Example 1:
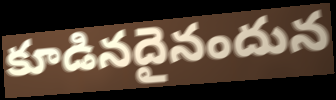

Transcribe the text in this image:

కూడినదైనందున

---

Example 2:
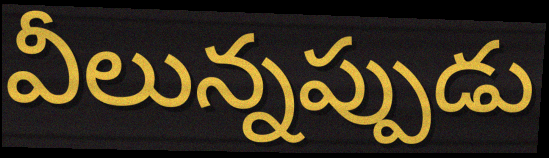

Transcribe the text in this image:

వీలున్నప్పుడు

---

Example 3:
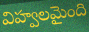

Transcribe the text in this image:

విహ్వలమైంది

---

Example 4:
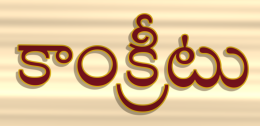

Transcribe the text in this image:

కాంక్రీటు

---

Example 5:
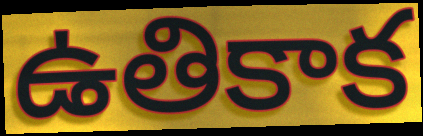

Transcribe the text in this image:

ఉతికాక